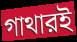
গাথারই